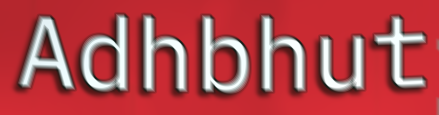
Adhbhut